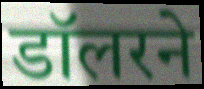
डॉलरने